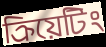
ক্রিয়েটিং